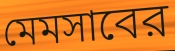
মেমসাবের